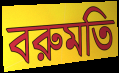
বরুমতি